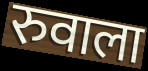
रुवाला